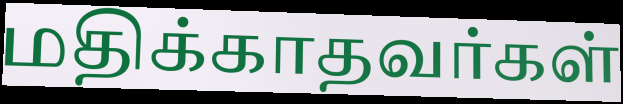
மதிக்காதவர்கள்